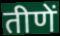
तीणें